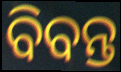
ବିବନ୍ତ